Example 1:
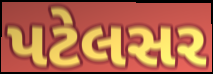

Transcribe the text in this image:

પટેલસર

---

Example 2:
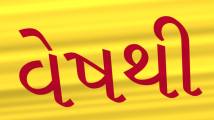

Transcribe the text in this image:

વેષથી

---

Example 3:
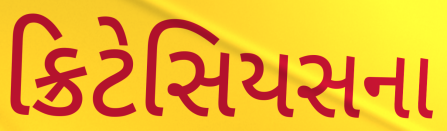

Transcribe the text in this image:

ક્રિટેસિયસના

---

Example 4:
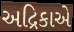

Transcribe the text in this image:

અદ્રિકાએ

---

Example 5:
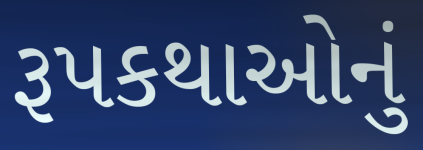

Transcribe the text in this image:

રૂપકથાઓનું